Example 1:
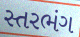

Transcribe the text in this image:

સ્તરભંગ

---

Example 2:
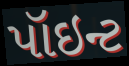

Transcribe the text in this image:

પૉઇન્ટ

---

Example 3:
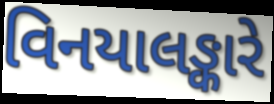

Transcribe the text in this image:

વિનયાલઙ્કારે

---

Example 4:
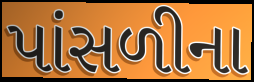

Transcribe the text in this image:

પાંસળીના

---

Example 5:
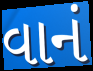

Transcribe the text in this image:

વાનં